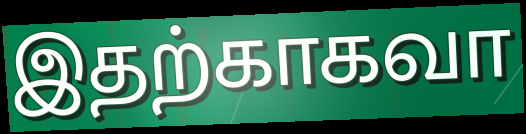
இதற்காகவா